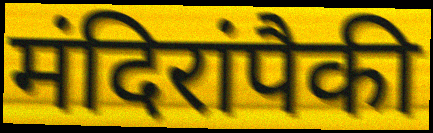
मंदिरांपैकी